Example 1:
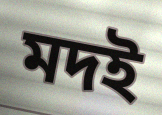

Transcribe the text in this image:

মদই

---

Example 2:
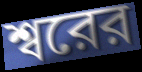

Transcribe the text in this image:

শ্বরের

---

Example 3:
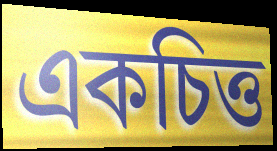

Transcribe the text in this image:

একচিত্ত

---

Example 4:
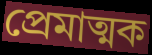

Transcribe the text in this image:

প্রেমাত্মক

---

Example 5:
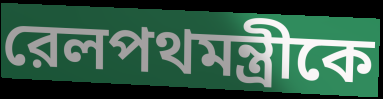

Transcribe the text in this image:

রেলপথমন্ত্রীকে